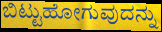
ಬಿಟ್ಟುಹೋಗುವುದನ್ನು